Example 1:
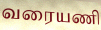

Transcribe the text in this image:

வரையணி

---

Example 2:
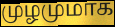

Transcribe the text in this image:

முழமுமாக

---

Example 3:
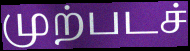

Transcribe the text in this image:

முற்படச்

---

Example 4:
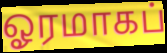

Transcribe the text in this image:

ஓரமாகப்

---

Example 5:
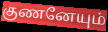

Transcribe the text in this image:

குணனேயும்